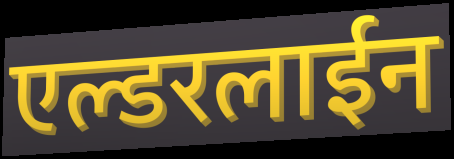
एल्डरलाईन